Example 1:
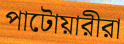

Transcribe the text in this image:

পাটোয়ারীরা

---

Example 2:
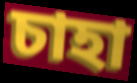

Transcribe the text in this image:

চাহা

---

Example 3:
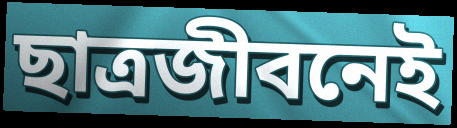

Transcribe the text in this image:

ছাত্রজীবনেই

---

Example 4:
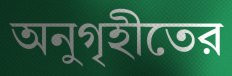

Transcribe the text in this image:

অনুগৃহীতের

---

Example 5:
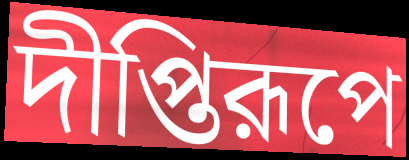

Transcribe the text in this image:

দীপ্তিরূপে